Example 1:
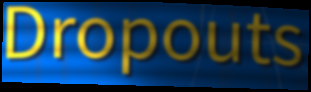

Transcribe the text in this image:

Dropouts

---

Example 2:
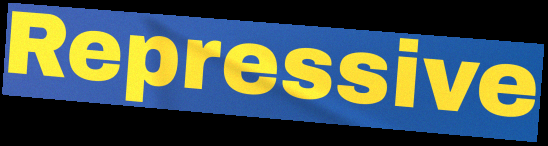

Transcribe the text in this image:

Repressive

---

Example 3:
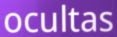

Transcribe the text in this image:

ocultas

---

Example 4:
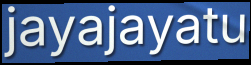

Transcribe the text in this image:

jayajayatu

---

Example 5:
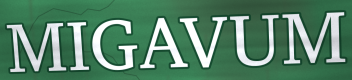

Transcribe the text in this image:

MIGAVUM